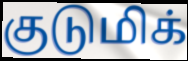
குடுமிக்